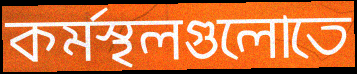
কর্মস্থলগুলোতে